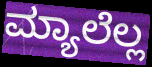
ಮ್ಯಾಲೆಲ್ಲ